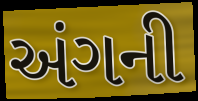
અંગની